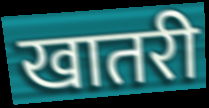
खातरी